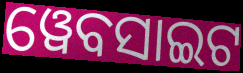
ୱେବସାଇଟ